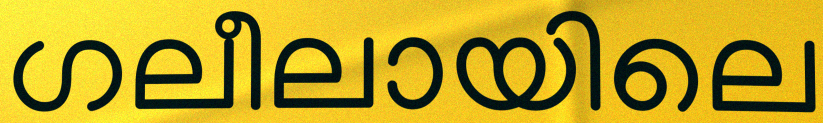
ഗലീലായിലെ